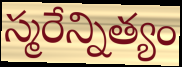
స్మరేన్నిత్యం